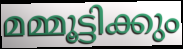
മമ്മൂട്ടിക്കും